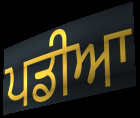
ਪਡੀਆ